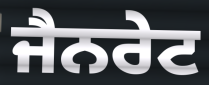
ਜੈਨਰੇਟ